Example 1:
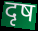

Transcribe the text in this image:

दृष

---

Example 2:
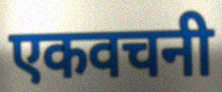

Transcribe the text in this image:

एकवचनी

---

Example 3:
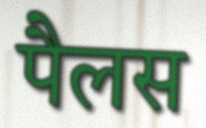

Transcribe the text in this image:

पैलस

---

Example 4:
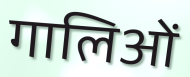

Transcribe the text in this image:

गालिओं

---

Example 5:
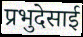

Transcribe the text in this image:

प्रभुदेसाई